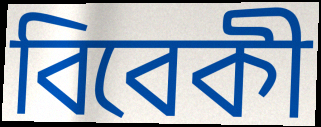
বিবেকী